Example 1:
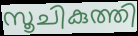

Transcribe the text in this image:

സൂചികുത്തി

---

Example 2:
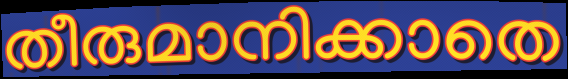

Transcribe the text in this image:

തീരുമാനിക്കാതെ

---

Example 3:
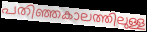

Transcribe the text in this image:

പതിഞ്ഞകാലത്തിലുള്ള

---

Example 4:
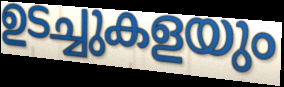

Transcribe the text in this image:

ഉടച്ചുകളയും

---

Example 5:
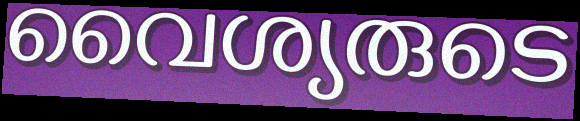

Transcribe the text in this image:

വൈശ്യരുടെ